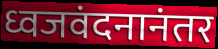
ध्वजवंदनानंतर